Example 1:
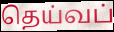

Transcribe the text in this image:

தெய்வப்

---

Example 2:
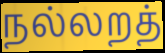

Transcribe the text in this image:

நல்லறத்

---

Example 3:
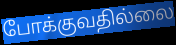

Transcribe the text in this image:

போக்குவதில்லை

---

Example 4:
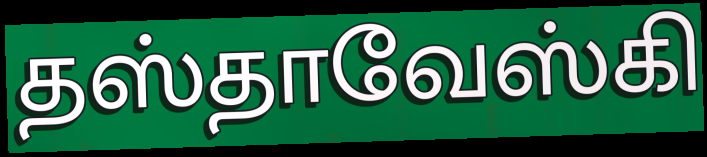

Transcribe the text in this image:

தஸ்தாவேஸ்கி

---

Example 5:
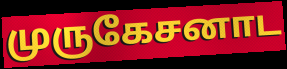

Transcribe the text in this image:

முருகேசனாட